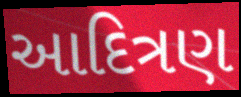
આદિત્રણ